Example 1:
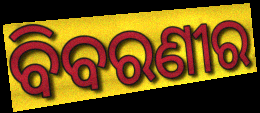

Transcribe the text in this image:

ବିବରଣୀର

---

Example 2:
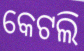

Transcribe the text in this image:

କେଟଲି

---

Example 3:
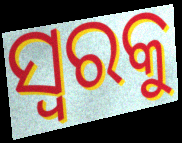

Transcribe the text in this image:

ସ୍ୱରକୁ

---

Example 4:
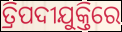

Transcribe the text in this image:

ତ୍ରିପଦୀଯୁକ୍ତିରେ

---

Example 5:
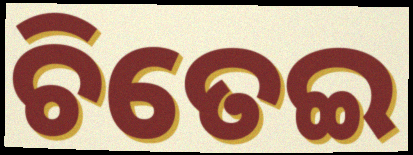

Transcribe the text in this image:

ଚିତେଇ